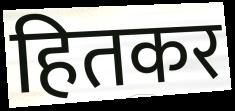
हितकर